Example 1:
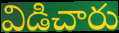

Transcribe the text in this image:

విడిచారు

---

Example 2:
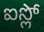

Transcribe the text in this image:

ఐస్లో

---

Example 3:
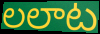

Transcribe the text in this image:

లలాట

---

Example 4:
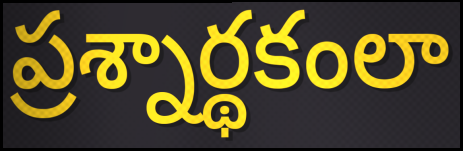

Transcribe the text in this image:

ప్రశ్నార్థకంలా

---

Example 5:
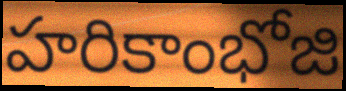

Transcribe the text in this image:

హరికాంభోజి